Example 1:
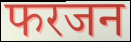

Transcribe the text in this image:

फरजन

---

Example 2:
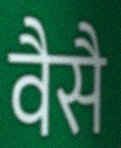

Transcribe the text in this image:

वैसै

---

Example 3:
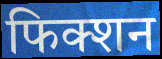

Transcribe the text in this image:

फिक्शन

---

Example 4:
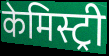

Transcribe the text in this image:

केमिस्ट्री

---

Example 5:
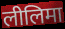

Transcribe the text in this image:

लीलिमा